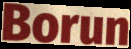
Borun